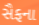
સૈફના